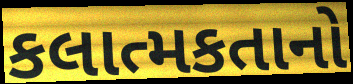
કલાત્મકતાનો